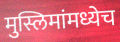
मुस्लिमांमध्येच